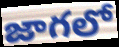
జాగలో